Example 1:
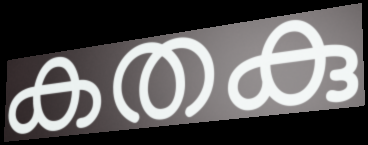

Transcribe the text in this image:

കതകു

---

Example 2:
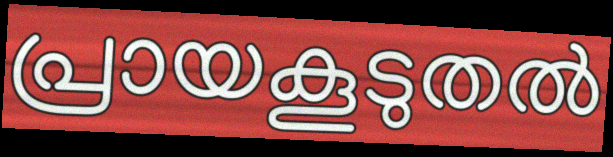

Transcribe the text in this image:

പ്രായകൂടുതൽ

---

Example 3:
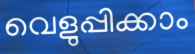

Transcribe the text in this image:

വെളുപ്പിക്കാം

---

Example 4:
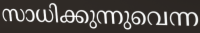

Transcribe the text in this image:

സാധിക്കുന്നുവെന്ന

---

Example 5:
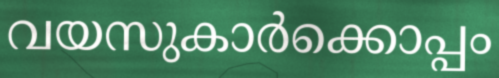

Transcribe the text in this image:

വയസുകാർക്കൊപ്പം